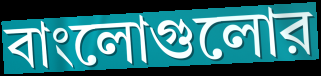
বাংলোগুলোর